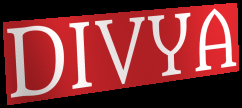
DIVYA